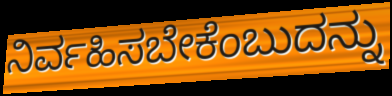
ನಿರ್ವಹಿಸಬೇಕೆಂಬುದನ್ನು